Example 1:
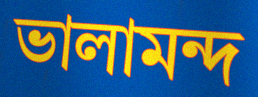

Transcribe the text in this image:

ভালামন্দ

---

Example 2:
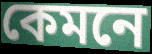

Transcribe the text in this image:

কেমনে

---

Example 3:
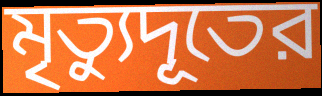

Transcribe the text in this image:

মৃত্যুদূতের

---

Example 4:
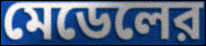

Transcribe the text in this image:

মেডেলের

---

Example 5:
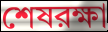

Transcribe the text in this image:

শেষরক্ষা